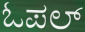
ಓಪಲ್